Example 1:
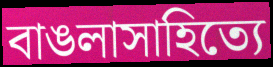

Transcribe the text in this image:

বাঙলাসাহিত্যে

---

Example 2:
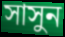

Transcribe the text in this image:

সাসুন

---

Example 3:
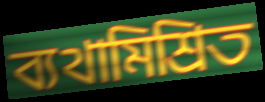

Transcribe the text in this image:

ব্যথামিশ্রিত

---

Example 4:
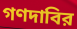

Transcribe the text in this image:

গণদাবির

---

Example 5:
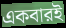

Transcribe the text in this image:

একবারই